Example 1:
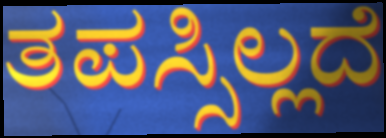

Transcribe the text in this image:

ತಪಸ್ಸಿಲ್ಲದೆ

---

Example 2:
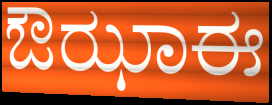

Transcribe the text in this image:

ಔಝಾಈ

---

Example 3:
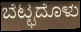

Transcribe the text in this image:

ಬೆಟ್ಟದೊಳು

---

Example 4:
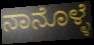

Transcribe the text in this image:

ನಾನೊಳ್ಳೆ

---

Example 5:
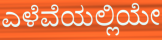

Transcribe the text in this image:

ಎಳೆವೆಯಲ್ಲಿಯೇ